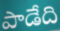
పాడేది